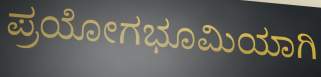
ಪ್ರಯೋಗಭೂಮಿಯಾಗಿ